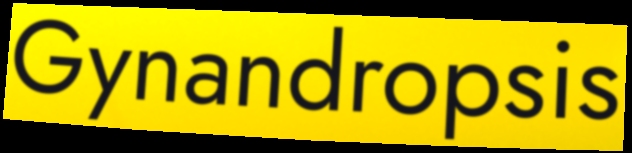
Gynandropsis